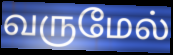
வருமேல்